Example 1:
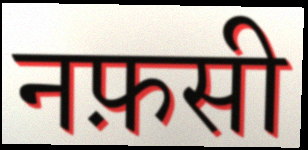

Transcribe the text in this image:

नफ़सी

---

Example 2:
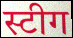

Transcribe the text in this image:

स्टीग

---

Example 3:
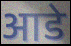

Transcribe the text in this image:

आडे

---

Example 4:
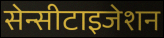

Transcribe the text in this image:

सेन्सीटाइजेशन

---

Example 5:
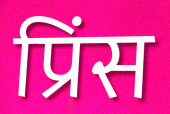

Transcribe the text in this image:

प्रिंस